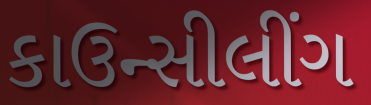
કાઉન્સીલીંગ